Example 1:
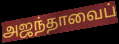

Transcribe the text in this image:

அஜந்தாவைப்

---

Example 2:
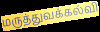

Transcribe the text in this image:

மருத்துவக்கல்வி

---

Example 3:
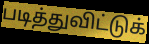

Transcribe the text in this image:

படித்துவிட்டுக்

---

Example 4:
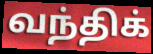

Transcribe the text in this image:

வந்திக்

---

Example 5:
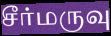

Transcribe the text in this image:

சீர்மருவு